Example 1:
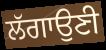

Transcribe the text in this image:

ਲੱਗਾਉਣੀ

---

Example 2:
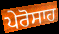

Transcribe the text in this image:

ਪੇਰੋਸਾਹ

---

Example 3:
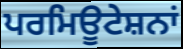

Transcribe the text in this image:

ਪਰਮਿਊਟੇਸ਼ਨਾਂ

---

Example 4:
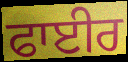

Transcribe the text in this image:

ਫਾਈਰ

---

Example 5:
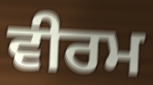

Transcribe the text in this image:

ਵੀਰਮ